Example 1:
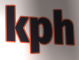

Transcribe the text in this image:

kph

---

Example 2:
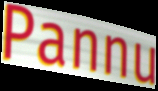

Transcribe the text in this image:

Pannu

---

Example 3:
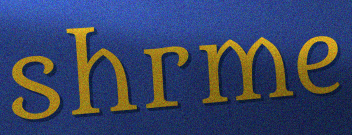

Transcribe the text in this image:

shrme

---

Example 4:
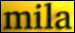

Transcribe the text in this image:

mila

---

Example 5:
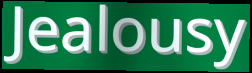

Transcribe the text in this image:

Jealousy